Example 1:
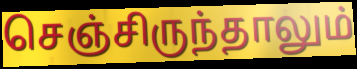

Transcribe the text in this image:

செஞ்சிருந்தாலும்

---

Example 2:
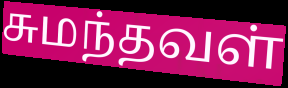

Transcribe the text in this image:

சுமந்தவள்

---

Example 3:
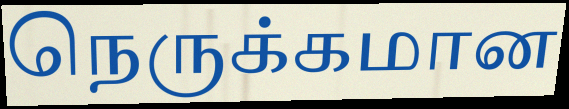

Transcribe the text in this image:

நெருக்கமான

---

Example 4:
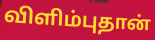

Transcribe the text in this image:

விளிம்புதான்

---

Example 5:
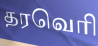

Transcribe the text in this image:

தரவெரி